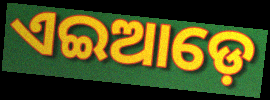
ଏଇଆଡ଼େ